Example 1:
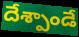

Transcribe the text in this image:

దేశ్పాండే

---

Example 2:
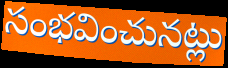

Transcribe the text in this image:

సంభవించునట్లు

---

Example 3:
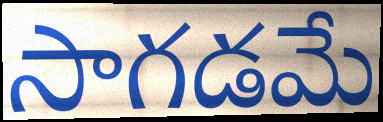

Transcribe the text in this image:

సాగడమే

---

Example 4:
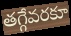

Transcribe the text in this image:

తగ్గేవరకూ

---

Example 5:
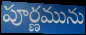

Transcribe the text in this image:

పూర్ణమును